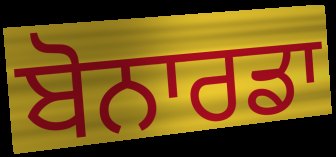
ਬੋਨਾਰਡਾ